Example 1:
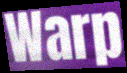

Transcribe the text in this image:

Warp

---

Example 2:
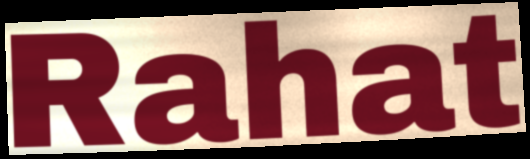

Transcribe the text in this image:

Rahat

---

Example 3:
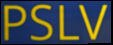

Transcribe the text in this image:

PSLV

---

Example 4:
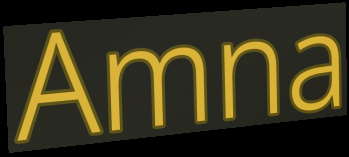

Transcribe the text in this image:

Amna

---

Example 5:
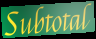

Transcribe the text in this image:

Subtotal